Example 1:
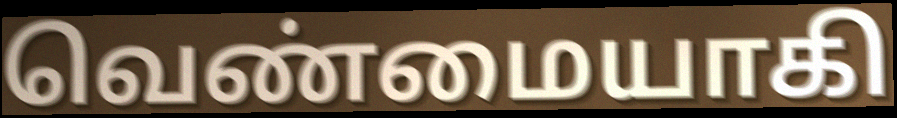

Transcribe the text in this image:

வெண்மையாகி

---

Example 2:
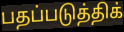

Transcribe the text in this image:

பதப்படுத்திக்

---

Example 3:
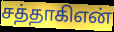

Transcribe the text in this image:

சத்தாகிஎன்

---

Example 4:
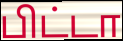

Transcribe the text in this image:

பிட்டா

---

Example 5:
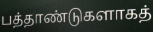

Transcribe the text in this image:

பத்தாண்டுகளாகத்